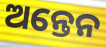
ଅନ୍ତେନ